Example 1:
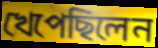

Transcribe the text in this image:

খেপেছিলেন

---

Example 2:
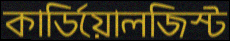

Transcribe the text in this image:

কার্ডিয়োলজিস্ট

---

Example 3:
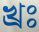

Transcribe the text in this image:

খ্রঃ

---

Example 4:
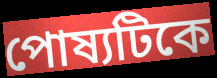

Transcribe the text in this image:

পোষ্যটিকে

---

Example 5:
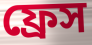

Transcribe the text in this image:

ফ্রেস